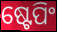
ଷ୍ଟେପିଂ